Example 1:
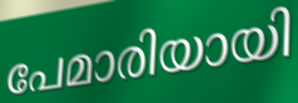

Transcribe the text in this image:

പേമാരിയായി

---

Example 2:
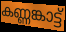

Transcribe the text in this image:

കണ്ണങ്കാട്ട്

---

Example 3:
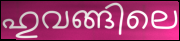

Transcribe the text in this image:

ഹുവങ്ങിലെ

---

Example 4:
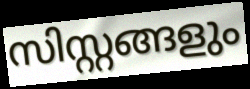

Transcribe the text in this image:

സിസ്റ്റങ്ങളും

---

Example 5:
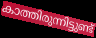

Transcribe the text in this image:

കാത്തിരുന്നിട്ടുണ്ട്